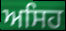
ਅਸਿਹ